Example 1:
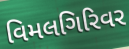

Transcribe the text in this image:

વિમલગિરિવર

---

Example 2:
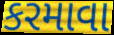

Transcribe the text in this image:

કરમાવા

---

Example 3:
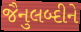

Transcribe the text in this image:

જૈનુલબ્દીને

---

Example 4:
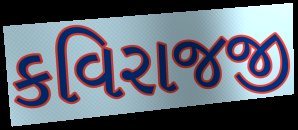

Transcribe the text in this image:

કવિરાજજી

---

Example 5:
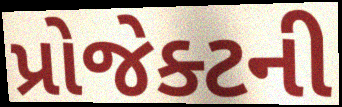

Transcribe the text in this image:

પ્રોજેક્ટની